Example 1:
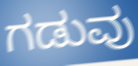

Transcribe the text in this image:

ಗಡುವು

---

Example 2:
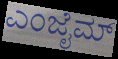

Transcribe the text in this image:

ಎಂಜೈಮ್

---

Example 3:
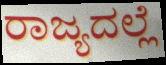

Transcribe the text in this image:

ರಾಜ್ಯದಲ್ಲೆ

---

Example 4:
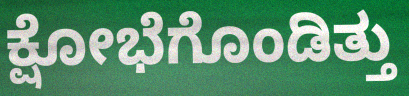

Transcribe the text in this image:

ಕ್ಷೋಭೆಗೊಂಡಿತ್ತು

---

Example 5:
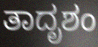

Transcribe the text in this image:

ತಾದೃಶಂ